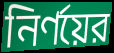
নির্ণয়ের